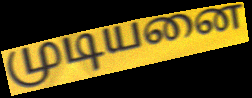
முடியனை